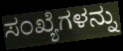
ಸಂಖ್ಯೆಗಳನ್ನು